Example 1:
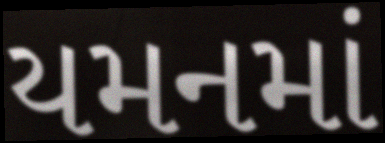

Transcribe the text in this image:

યમનમાં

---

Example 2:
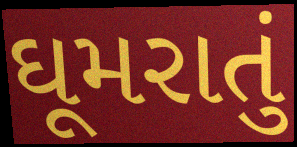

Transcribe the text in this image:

ઘૂમરાતું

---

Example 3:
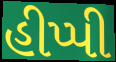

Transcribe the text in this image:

હીપ્પી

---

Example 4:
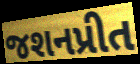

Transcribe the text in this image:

જશનપ્રીત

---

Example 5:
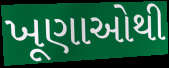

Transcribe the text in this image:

ખૂણાઓથી